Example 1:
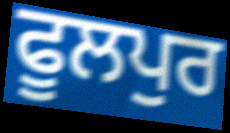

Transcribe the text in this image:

ਫੂਲਪੁਰ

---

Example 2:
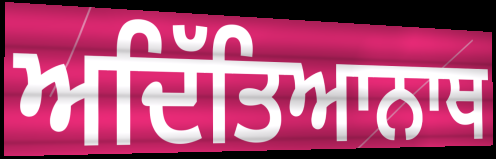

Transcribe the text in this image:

ਅਦਿੱਤਿਆਨਾਥ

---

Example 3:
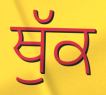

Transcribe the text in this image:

ਥੁੱਕ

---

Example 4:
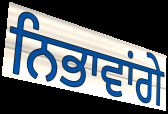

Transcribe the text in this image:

ਨਿਭਾਵਾਂਗੇ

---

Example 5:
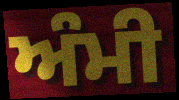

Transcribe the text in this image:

ਅੰਮੀ